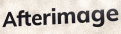
Afterimage